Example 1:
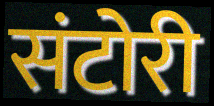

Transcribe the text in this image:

संटोरी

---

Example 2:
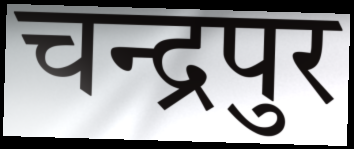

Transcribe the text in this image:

चन्द्रपुर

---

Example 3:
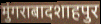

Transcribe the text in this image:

मुंगराबादशाहपुर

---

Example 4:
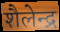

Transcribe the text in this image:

शैलेन्द्र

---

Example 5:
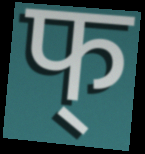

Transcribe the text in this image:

फ्